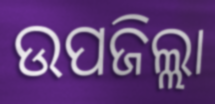
ଉପଜିଲ୍ଲା